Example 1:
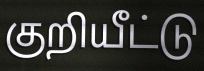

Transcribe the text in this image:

குறியீட்டு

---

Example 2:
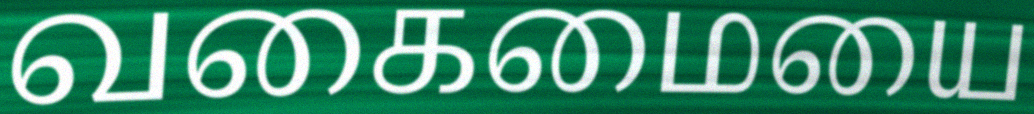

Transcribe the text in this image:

வகைமையை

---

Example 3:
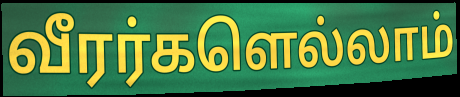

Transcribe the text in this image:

வீரர்களெல்லாம்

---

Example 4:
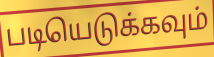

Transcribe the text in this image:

படியெடுக்கவும்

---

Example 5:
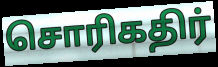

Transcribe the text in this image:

சொரிகதிர்